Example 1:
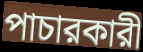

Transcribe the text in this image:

পাচারকারী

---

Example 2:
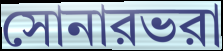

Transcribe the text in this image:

সোনারভরা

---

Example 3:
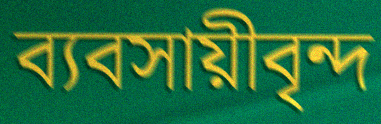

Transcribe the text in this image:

ব্যবসায়ীবৃন্দ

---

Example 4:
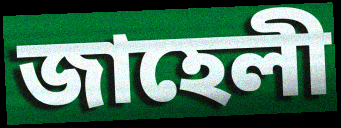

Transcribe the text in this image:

জাহেলী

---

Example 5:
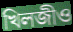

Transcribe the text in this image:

খিলজীও